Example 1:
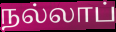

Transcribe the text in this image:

நல்லாப்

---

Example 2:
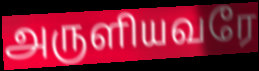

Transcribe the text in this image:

அருளியவரே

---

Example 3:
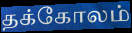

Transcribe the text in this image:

தக்கோலம்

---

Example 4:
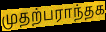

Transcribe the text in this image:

முதற்பராந்தக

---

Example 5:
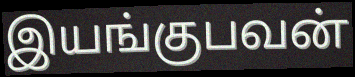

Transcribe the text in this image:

இயங்குபவன்